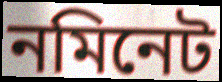
নমিনেট